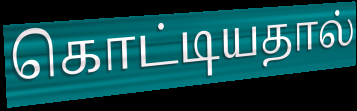
கொட்டியதால்